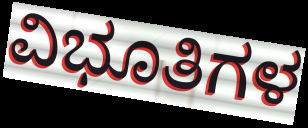
ವಿಭೂತಿಗಳ